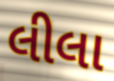
લીલા